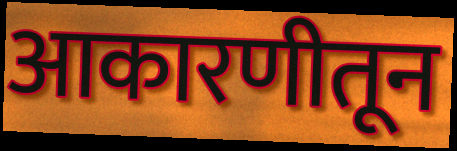
आकारणीतून